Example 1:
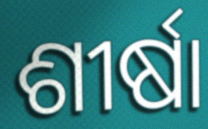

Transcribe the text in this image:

ଶୀର୍ଷା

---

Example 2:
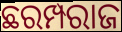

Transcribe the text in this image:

ଛରମ୍ପରାଜ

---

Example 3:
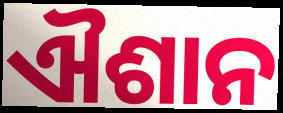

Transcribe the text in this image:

ଐଶାନ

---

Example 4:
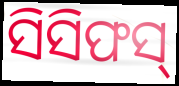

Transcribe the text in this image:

ସିସିଫସ୍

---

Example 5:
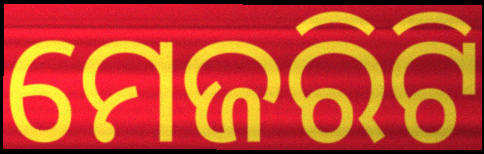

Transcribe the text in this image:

ମେଜରିଟି